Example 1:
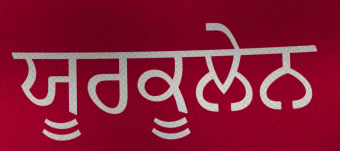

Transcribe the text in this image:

ਯੂਰਕੂਲੇਨ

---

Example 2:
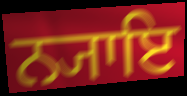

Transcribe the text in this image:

ਨ੍ਯਾਇ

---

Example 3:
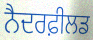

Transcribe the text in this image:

ਨੈਦਰਫ਼ੀਲਡ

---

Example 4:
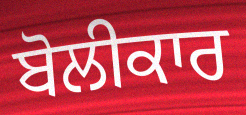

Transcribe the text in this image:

ਬੋਲੀਕਾਰ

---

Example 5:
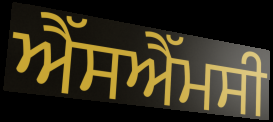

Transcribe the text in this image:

ਐੱਸਐੱਮਸੀ